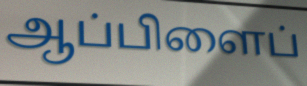
ஆப்பிளைப்